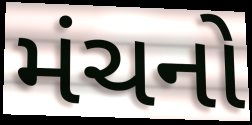
મંચનો